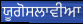
ਯੂਗੋਸਲਾਵੀਆ